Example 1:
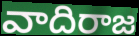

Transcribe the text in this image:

వాదిరాజ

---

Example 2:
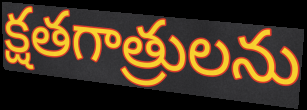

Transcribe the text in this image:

క్షతగాత్రులను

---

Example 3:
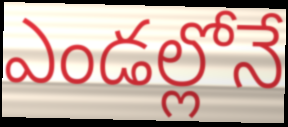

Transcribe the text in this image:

ఎండల్లోనే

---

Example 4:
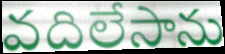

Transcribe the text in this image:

వదిలేసాను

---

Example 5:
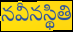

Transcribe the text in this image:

నవీనస్థితి